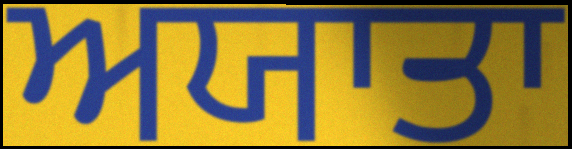
ਅਯਾਤਾ